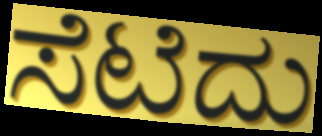
ಸೆಟೆದು